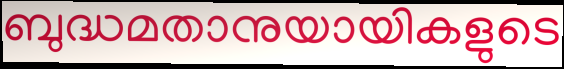
ബുദ്ധമതാനുയായികളുടെ